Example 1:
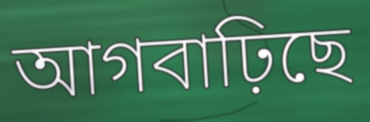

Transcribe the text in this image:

আগবাঢ়িছে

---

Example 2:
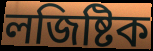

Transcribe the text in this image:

লজিষ্টিক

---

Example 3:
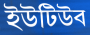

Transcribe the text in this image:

ইউটিউব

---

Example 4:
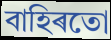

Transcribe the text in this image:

বাহিৰতো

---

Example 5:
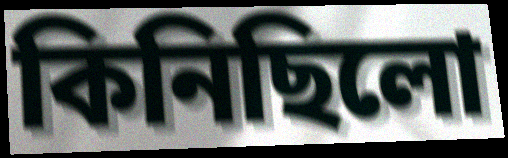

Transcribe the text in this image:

কিনিছিলো